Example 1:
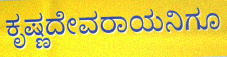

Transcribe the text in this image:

ಕೃಷ್ಣದೇವರಾಯನಿಗೂ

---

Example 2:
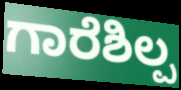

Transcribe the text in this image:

ಗಾರೆಶಿಲ್ಪ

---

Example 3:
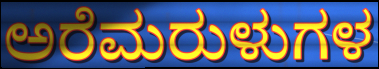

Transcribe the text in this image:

ಅರೆಮರುಳುಗಳ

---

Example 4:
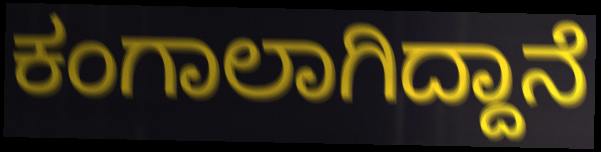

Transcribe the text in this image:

ಕಂಗಾಲಾಗಿದ್ದಾನೆ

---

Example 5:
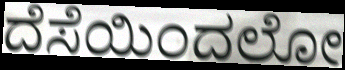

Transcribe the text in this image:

ದೆಸೆಯಿಂದಲೋ